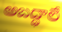
అబద్ధాలే